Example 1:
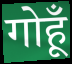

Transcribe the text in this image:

गोहूँ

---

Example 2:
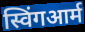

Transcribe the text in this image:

स्विंगआर्म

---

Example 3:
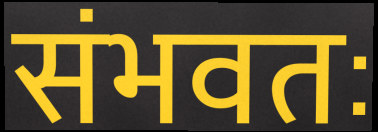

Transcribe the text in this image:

संभवतः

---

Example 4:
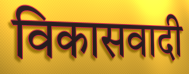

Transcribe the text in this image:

विकासवादी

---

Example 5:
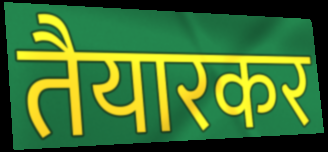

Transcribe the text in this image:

तैयारकर